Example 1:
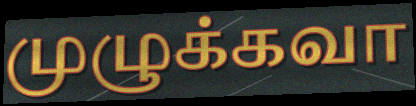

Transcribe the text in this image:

முழுக்கவா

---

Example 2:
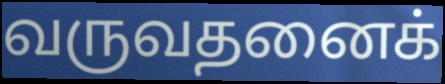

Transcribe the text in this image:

வருவதனைக்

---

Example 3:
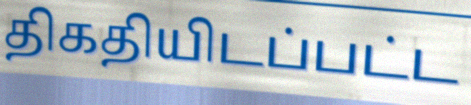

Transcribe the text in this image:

திகதியிடப்பட்ட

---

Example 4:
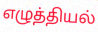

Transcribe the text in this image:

எழுத்தியல்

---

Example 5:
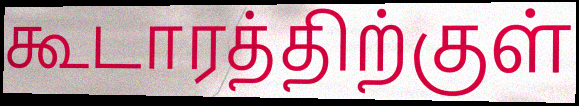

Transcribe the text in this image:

கூடாரத்திற்குள்